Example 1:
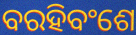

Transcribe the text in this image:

ବରହିବଂଶେ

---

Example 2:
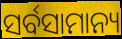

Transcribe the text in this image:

ସର୍ବସାମାନ୍ୟ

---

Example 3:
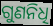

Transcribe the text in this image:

ଗୁଣନିଧି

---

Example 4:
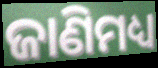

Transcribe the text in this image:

ଜାଣିମଧ୍ୟ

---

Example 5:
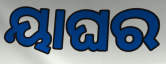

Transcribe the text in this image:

ୟାଘର